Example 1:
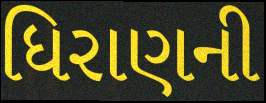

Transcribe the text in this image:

ધિરાણની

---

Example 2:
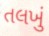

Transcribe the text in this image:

તલખું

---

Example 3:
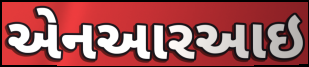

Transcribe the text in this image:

એનઆરઆઇ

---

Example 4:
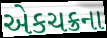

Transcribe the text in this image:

એકચક્રના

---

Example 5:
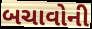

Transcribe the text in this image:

બચાવોની